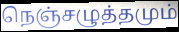
நெஞ்சழுத்தமும்